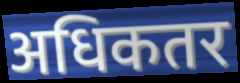
अधिकतर